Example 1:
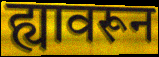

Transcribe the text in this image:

ह्यावरून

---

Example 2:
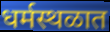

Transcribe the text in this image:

धर्मस्थळात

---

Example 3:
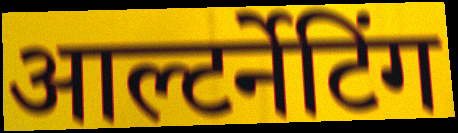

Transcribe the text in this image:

आल्टर्नेटिंग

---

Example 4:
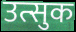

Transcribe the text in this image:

उत्सुक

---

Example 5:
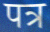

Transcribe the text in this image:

पत्र